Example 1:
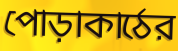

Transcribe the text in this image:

পোড়াকাঠের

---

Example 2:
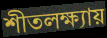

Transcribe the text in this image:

শীতলক্ষ্যায়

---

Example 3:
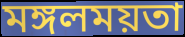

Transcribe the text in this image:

মঙ্গলময়তা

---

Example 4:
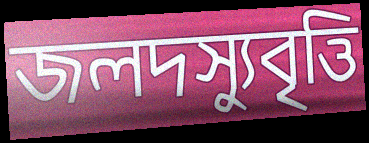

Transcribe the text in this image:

জলদস্যুবৃত্তি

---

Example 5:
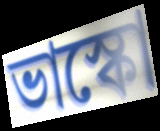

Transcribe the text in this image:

ভাস্কো